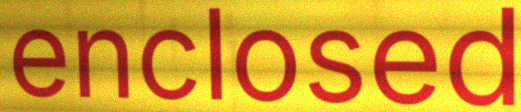
enclosed